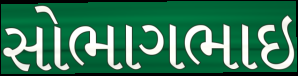
સોભાગભાઇ